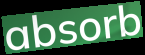
absorb